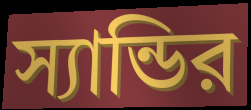
স্যান্ডির